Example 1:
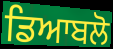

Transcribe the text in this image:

ਡਿਆਬਲੋ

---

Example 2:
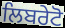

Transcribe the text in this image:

ਲਿਬਰੇਟੋ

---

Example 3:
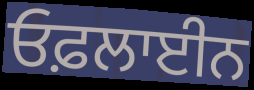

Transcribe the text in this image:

ਓਫ਼ਲਾਈਨ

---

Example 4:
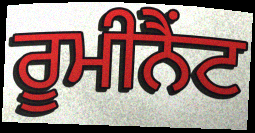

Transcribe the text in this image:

ਰੂਮੀਨੈਂਟ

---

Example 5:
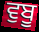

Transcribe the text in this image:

ਵੁਬੂ